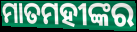
ମାତମହୀଙ୍କର